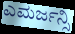
ಎಮರ್ಜನ್ಸಿ